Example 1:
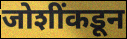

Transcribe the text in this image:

जोशींकडून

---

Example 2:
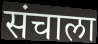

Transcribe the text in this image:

संचाला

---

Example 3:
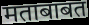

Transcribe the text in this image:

मताबाबत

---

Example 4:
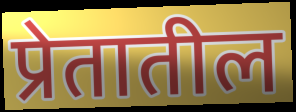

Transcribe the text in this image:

प्रेतातील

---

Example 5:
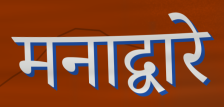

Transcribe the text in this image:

मनाद्वारे